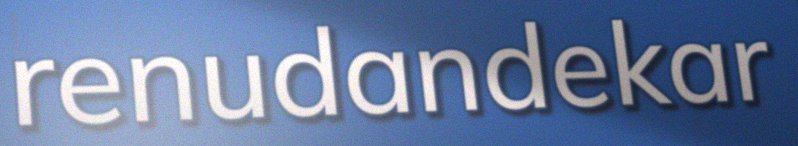
renudandekar